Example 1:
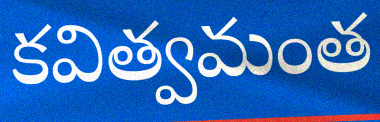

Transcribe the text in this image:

కవిత్వమంత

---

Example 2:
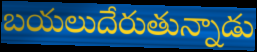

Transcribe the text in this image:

బయలుదేరుతున్నాడు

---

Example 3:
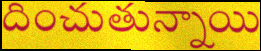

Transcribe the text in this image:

దించుతున్నాయి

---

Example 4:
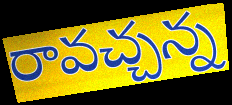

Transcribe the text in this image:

రావచ్చన్న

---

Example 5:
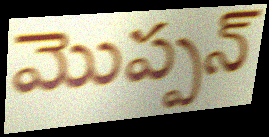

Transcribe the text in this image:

మొప్పన్